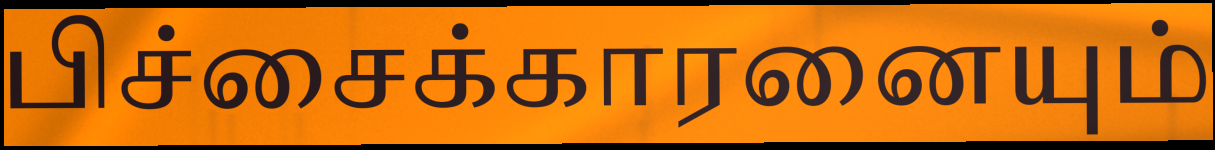
பிச்சைக்காரனையும்